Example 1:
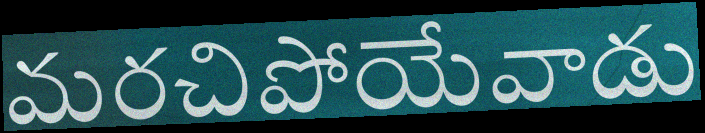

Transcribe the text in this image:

మరచిపోయేవాడు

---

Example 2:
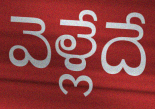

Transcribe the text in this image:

వెళ్లేదే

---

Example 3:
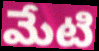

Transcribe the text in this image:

మేటి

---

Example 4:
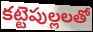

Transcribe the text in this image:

కట్టెపుల్లలతో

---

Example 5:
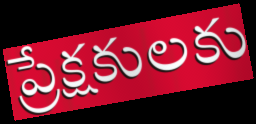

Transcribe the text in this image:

ప్రేక్షకులకు